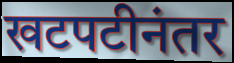
खटपटीनंतर